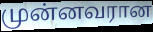
முன்னவரான